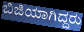
ಬಿಜಿಯಾಗಿದ್ದರು